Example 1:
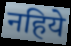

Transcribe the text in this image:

नहिये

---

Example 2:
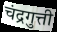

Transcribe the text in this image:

चंद्रगुत्ती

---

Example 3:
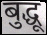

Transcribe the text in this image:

बुद्धू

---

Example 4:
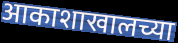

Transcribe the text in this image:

आकाशाखालच्या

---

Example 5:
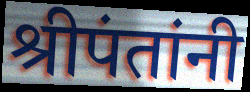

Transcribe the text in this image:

श्रीपंतांनी